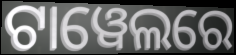
ଟାୱେଲରେ